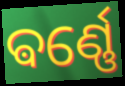
ଵର୍ଣ୍ଣେ